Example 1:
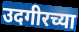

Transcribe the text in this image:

उदगीरच्या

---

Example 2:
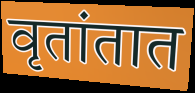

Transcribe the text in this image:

वृतांतात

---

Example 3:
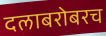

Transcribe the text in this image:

दलाबरोबरच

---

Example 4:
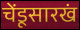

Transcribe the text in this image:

चेंडूसारखं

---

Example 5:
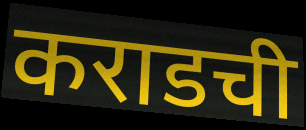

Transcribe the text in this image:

कराडची